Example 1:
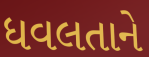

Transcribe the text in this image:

ધવલતાને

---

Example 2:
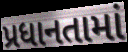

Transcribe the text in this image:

પ્રધાનતામાં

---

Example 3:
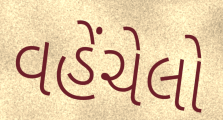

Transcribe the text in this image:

વહેંચેલો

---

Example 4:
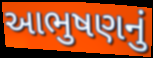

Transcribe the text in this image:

આભુષણનું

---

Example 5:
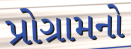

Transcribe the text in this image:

પ્રોગ્રામનો